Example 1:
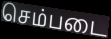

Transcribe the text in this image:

செம்படை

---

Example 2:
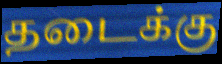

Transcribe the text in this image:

தடைக்கு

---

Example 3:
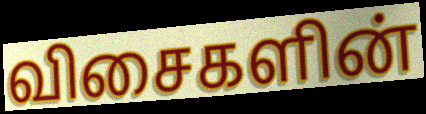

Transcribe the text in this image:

விசைகளின்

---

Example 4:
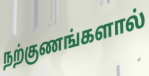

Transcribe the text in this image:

நற்குணங்களால்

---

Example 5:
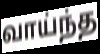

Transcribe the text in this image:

வாய்ந்த